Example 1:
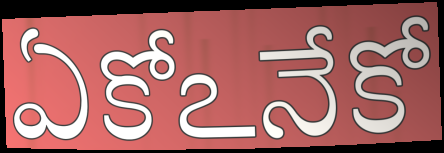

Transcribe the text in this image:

ఏకోఽనేకో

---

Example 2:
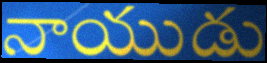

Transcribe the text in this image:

నాయుడు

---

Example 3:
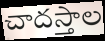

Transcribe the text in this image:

చాదస్తాల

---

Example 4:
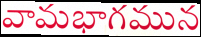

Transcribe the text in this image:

వామభాగమున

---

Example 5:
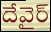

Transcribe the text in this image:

దేవైర్